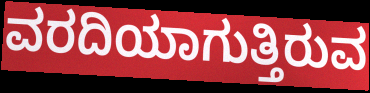
ವರದಿಯಾಗುತ್ತಿರುವ